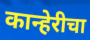
कान्हेरीचा